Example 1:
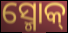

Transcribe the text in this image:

ସ୍ମୋକ୍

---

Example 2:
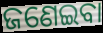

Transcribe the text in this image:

ଜଣେଇବା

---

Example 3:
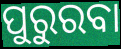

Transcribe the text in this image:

ପୁରୁରବା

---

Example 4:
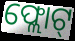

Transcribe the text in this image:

ଫ୍ଲୋଟ୍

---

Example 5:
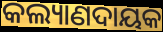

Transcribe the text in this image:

କଲ୍ୟାଣଦାୟକ